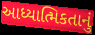
આધ્યાત્મિકતાનું